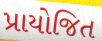
પ્રાયોજિત